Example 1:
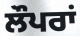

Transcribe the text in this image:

ਲੌਪਰਾਂ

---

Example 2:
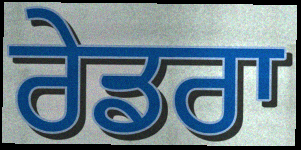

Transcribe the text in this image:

ਰੇਡਰਾ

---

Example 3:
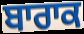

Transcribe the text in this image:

ਬਾਰਾਕ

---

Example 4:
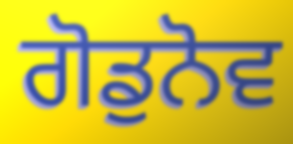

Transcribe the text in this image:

ਗੋਡੁਨੋਵ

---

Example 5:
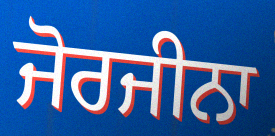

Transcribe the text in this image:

ਜੋਰਜੀਨਾ